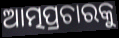
ଆତ୍ମପ୍ରଚାରକୁ